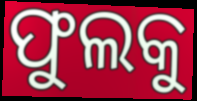
ଫୁଲକୁ